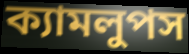
ক্যামলুপস